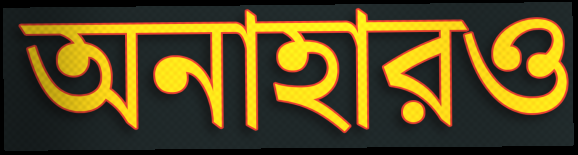
অনাহারও